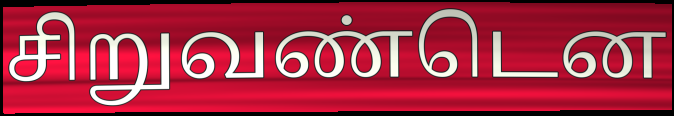
சிறுவண்டென